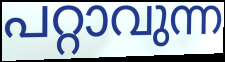
പറ്റാവുന്ന